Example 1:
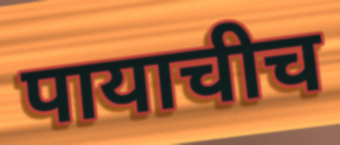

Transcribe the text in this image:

पायाचीच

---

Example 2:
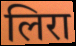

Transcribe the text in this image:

लिरा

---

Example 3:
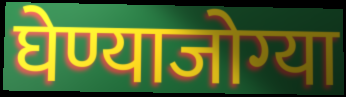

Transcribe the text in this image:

घेण्याजोग्या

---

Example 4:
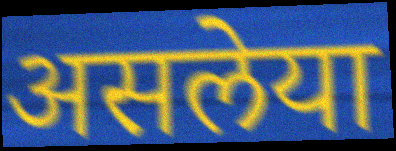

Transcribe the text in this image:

असलेया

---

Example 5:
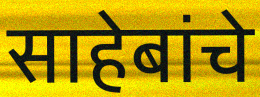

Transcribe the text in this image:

साहेबांचे